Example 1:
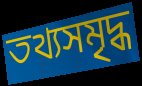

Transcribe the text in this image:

তথ্যসমৃদ্ধ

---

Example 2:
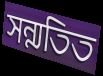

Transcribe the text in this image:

সন্মতিত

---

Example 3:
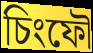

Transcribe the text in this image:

চিংফৌ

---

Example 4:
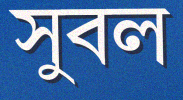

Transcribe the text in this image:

সুবল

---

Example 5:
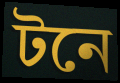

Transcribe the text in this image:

টনে